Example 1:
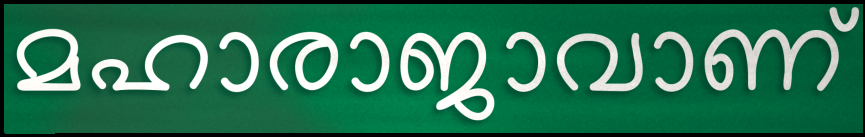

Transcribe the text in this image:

മഹാരാജാവാണ്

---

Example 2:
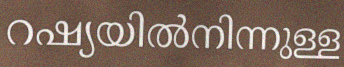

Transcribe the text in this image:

റഷ്യയിൽനിന്നുള്ള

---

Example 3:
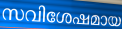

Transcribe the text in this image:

സവിശേഷമായ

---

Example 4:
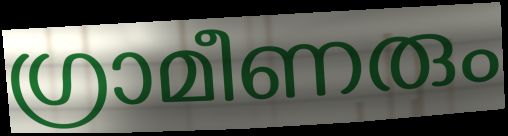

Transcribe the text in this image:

ഗ്രാമീണരും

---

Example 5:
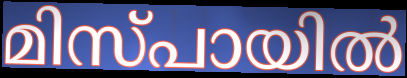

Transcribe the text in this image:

മിസ്പായിൽ